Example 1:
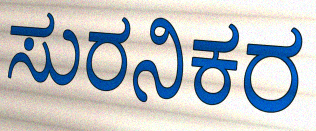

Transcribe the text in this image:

ಸುರನಿಕರ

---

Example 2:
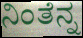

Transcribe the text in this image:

ನಿಂತೆನ್ನ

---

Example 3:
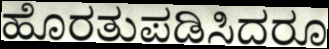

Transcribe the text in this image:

ಹೊರತುಪಡಿಸಿದರೂ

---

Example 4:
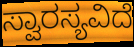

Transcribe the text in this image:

ಸ್ವಾರಸ್ಯವಿದೆ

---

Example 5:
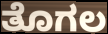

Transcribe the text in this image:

ತೊಗಲ